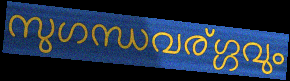
സുഗന്ധവര്ഗ്ഗവും